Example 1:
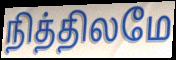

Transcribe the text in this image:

நித்திலமே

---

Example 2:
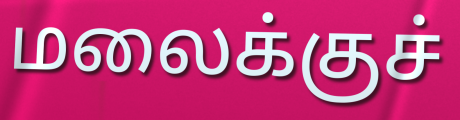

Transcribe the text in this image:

மலைக்குச்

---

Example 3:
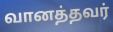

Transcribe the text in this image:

வானத்தவர்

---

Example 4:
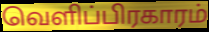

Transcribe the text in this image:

வெளிப்பிரகாரம்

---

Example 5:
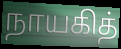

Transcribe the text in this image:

நாயகித்